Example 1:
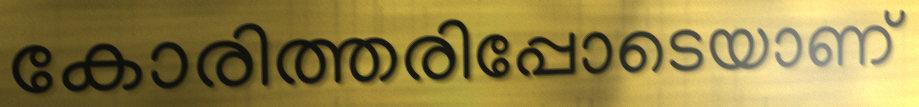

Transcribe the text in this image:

കോരിത്തരിപ്പോടെയാണ്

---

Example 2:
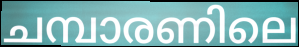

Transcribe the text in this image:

ചമ്പാരണിലെ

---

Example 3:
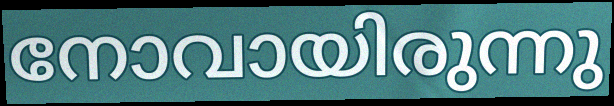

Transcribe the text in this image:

നോവായിരുന്നു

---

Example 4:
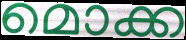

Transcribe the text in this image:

മൊക്ക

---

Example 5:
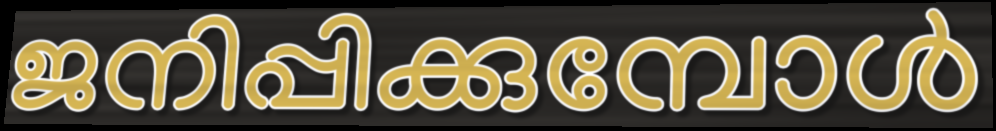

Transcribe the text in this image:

ജനിപ്പിക്കുമ്പോൾ